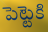
పెట్టెకి